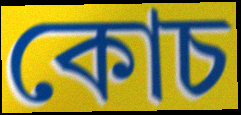
কোচ